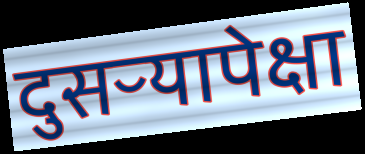
दुसऱ्यापेक्षा